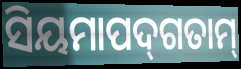
ସିୟମାପଦ୍‌ଗତାମ୍